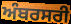
ਅੰਬਰਸਰੀ